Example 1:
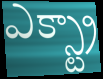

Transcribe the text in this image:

ఎక్స్ట్రా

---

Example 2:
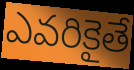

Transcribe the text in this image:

ఎవరికైతే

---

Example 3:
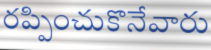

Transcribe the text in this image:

రప్పించుకొనేవారు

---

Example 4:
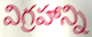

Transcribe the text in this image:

విగ్రహాన్ని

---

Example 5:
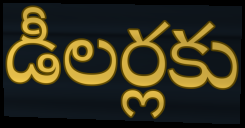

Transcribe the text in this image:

డీలర్లకు